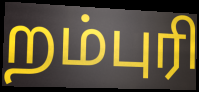
றம்புரி